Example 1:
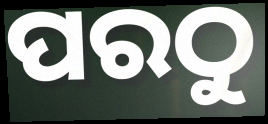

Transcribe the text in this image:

ପରଠୁ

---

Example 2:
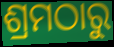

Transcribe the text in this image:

ଶ୍ରମଠାରୁ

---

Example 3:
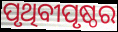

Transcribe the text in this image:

ପୃଥିବୀପୃଷ୍ଠର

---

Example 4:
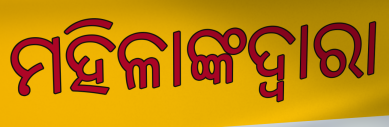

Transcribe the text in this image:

ମହିଳାଙ୍କଦ୍ୱାରା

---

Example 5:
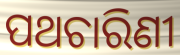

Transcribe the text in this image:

ପଥଚାରିଣୀ